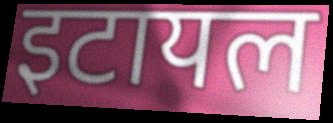
इटायल